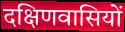
दक्षिणवासियों